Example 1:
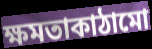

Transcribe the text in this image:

ক্ষমতাকাঠামো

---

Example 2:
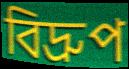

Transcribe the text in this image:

বিদ্রুপ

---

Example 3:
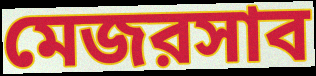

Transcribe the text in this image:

মেজরসাব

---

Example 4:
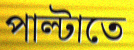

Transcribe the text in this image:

পাল্টাতে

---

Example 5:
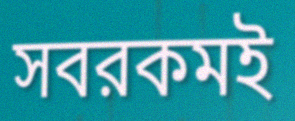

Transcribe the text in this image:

সবরকমই